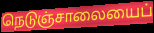
நெடுஞ்சாலையைப்